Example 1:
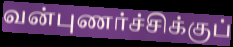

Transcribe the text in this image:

வன்புணர்ச்சிக்குப்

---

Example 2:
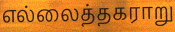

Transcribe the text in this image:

எல்லைத்தகராறு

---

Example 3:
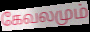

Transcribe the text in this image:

கேவலமும்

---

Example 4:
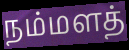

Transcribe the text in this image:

நம்மளத்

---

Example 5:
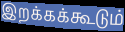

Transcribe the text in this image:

இறக்கக்கூடும்